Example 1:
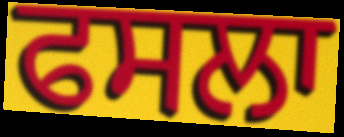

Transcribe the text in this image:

ਫਸਲਾ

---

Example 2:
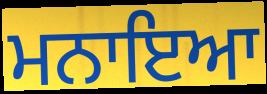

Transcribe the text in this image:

ਮਨਾਇਆ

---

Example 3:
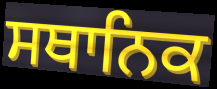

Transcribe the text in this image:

ਸਥਾਨਿਕ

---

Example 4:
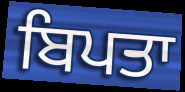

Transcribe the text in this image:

ਬਿਪਤਾ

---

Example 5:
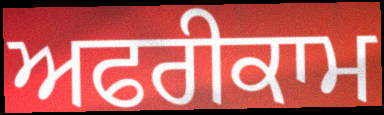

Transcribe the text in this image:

ਅਫਰੀਕਾਮ